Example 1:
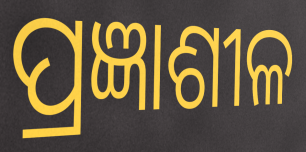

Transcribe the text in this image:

ପ୍ରଜ୍ଞାଶୀଳ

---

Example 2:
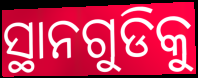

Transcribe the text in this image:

ସ୍ଥାନଗୁଡିକୁ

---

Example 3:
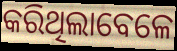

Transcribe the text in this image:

କରିଥିଲାବେଳେ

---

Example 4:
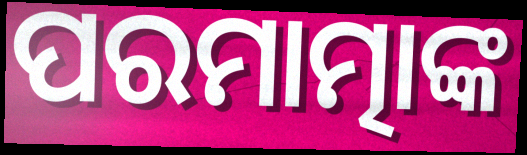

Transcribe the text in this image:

ପରମାତ୍ମାଙ୍କ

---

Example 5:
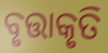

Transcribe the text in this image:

ବୃତ୍ତାକୃତି